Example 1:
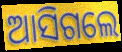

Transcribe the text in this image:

ଆସିଗଲେ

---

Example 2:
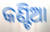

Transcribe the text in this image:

କଣ୍ଟିଆ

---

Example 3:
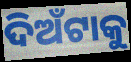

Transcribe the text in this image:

ଦିଅଁଟାକୁ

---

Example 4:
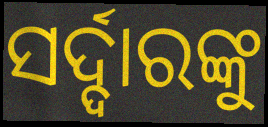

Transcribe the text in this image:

ସର୍ଦ୍ଦାରଙ୍କୁ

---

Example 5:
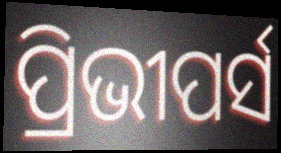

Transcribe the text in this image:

ପ୍ରିଭୀପର୍ସ